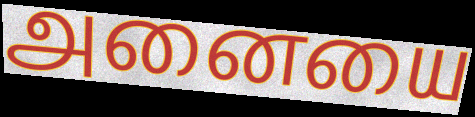
அனையை